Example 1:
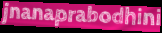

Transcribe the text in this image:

jnanaprabodhini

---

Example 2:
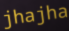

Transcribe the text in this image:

jhajha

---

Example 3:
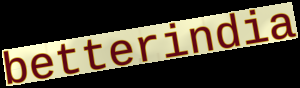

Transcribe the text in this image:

betterindia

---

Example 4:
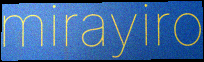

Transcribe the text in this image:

mirayiro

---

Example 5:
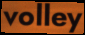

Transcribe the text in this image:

volley